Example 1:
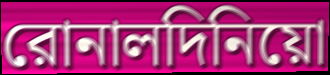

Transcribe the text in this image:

রোনালদিনিয়ো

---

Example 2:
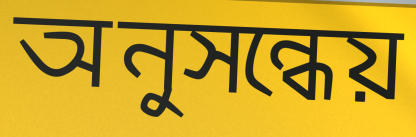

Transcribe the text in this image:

অনুসন্ধেয়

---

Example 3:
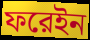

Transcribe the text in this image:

ফরেইন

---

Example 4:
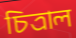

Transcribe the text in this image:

চিত্রাল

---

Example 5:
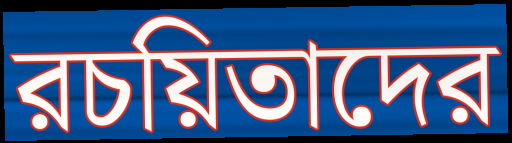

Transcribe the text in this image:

রচয়িতাদের